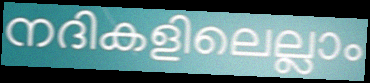
നദികളിലെല്ലാം